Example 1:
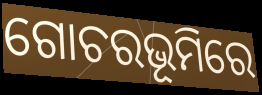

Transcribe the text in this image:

ଗୋଚରଭୂମିରେ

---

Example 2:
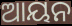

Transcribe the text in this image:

ଆୟନ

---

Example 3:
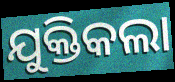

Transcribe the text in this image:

ଯୁକ୍ତିକଲା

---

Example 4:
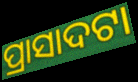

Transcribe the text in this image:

ପ୍ରାସାଦଟା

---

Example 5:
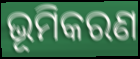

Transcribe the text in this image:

ଭୂମିକରଣ